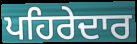
ਪਹਿਰੇਦਾਰ